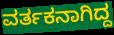
ವರ್ತಕನಾಗಿದ್ದ